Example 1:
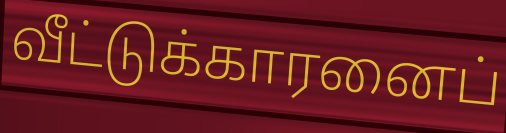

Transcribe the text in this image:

வீட்டுக்காரனைப்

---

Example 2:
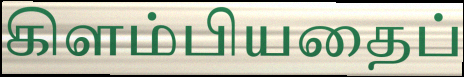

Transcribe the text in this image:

கிளம்பியதைப்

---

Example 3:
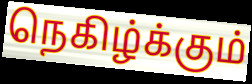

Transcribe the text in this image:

நெகிழ்க்கும்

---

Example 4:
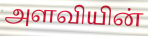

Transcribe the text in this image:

அளவியின்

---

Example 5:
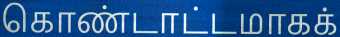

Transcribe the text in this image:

கொண்டாட்டமாகக்